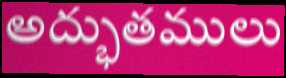
అద్భుతములు